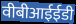
वीबीआईईडी